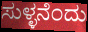
ಸುಳ್ಳನೆಂದು